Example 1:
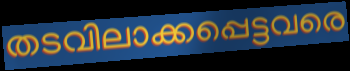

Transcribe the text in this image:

തടവിലാക്കപ്പെട്ടവരെ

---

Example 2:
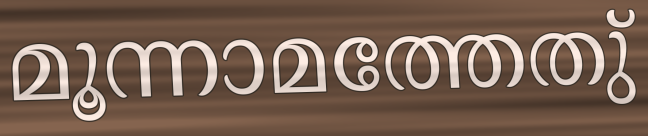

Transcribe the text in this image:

മൂന്നാമത്തേതു്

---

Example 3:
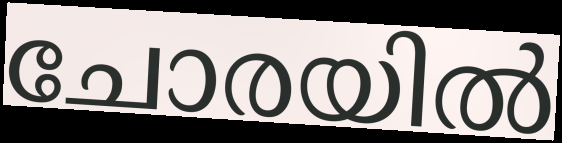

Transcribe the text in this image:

ചോരയിൽ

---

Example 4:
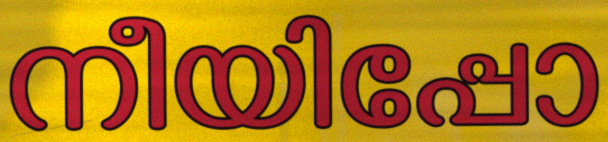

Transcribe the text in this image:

നീയിപ്പോ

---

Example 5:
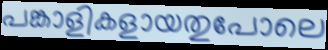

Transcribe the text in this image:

പങ്കാളികളായതുപോലെ